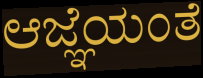
ಆಜ್ಞೆಯಂತೆ